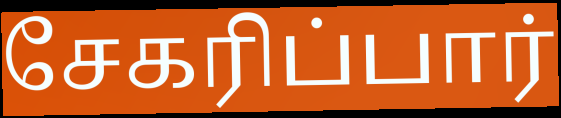
சேகரிப்பார்